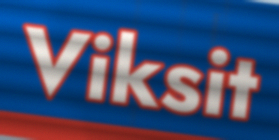
Viksit